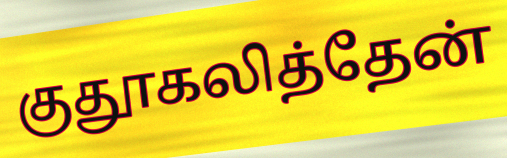
குதூகலித்தேன்